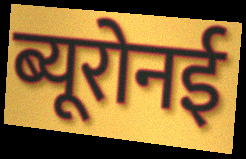
ब्यूरोनई